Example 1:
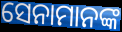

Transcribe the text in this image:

ସେନାମାନଙ୍କ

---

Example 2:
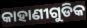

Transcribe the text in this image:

କାହାଣୀଗୁଡିକ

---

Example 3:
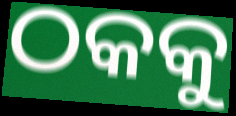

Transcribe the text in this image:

ଠକକୁ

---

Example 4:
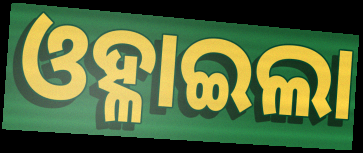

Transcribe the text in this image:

ଓହ୍ଳାଇଲା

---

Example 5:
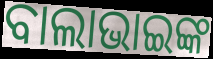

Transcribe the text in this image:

ବାଲାଭାଇଙ୍କ